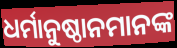
ଧର୍ମାନୁଷ୍ଠାନମାନଙ୍କ